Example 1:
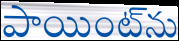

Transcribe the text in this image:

పాయింట్‌ను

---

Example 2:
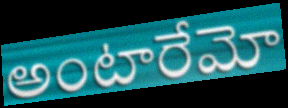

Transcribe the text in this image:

అంటారేమో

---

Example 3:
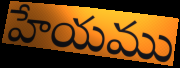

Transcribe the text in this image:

హేయము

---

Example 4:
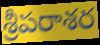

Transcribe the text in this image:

శ్రీపరాశర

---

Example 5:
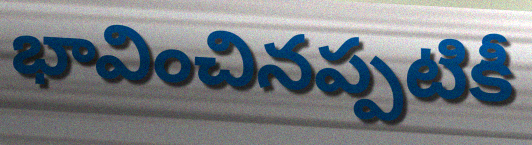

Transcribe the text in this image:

భావించినప్పటికీ